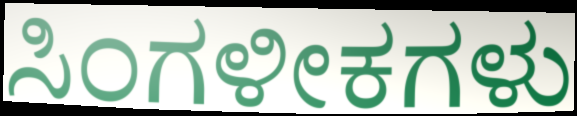
ಸಿಂಗಳೀಕಗಳು